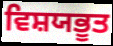
ਵਿਸ਼ਯਭੂਤ